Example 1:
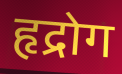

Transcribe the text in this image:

हृद्रोग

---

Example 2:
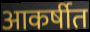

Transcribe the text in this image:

आकर्षीत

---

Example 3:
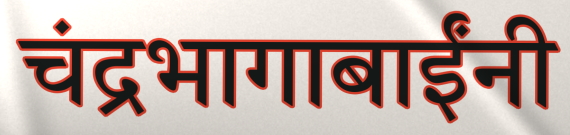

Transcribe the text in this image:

चंद्रभागाबाईंनी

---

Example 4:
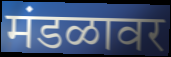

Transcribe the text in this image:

मंडळावर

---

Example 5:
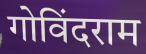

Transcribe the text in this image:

गोविंदराम